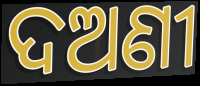
ଦଅଣୀ